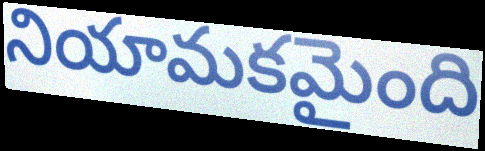
నియామకమైంది